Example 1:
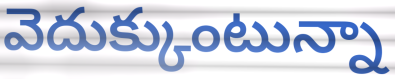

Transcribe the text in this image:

వెదుక్కుంటున్నా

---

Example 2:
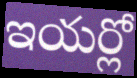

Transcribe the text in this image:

ఇయర్లో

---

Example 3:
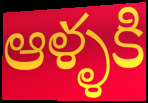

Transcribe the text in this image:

ఆళ్ళకి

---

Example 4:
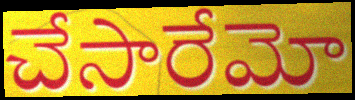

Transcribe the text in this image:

చేసారేమో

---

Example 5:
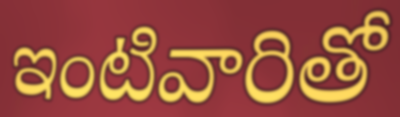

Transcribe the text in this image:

ఇంటివారితో